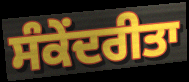
ਸੰਕੇਂਦਰੀਤਾ